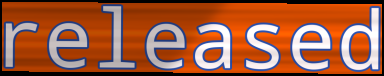
released